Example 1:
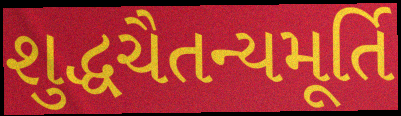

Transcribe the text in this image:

શુદ્ધચૈતન્યમૂર્તિ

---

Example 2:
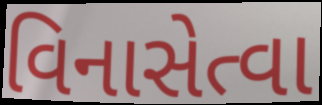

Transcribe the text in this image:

વિનાસેત્વા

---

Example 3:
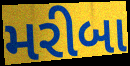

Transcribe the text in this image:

મરીબા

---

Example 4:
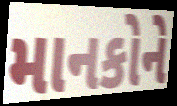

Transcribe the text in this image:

માનકોને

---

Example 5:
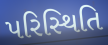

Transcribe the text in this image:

પરિસ્‍થિતિ